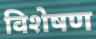
विशेषण